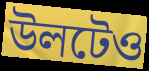
উলটেও